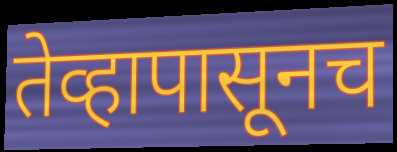
तेव्हापासूनच